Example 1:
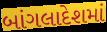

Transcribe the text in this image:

બાંગલાદેશમાં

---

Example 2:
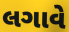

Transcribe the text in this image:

લગાવે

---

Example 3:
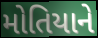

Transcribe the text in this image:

મોતિયાને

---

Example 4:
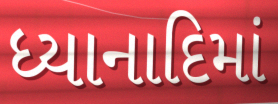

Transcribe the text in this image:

ધ્યાનાદિમાં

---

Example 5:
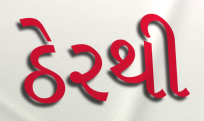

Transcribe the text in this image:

ઠેરથી